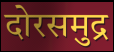
दोरसमुद्र